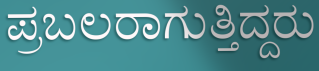
ಪ್ರಬಲರಾಗುತ್ತಿದ್ದರು